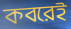
কবরেই